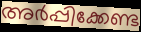
അർപ്പിക്കേണ്ട